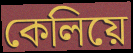
কেলিয়ে